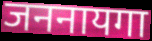
जननायगा